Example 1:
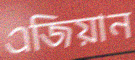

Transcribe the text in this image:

এজিয়ান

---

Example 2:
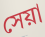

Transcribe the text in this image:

সেয়া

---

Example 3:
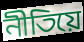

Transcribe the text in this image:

নীতিয়ে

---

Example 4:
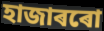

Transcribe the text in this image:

হাজাৰৰো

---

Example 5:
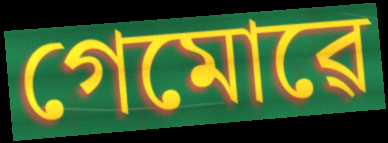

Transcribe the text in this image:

গেমোৱে